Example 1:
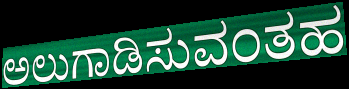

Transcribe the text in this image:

ಅಲುಗಾಡಿಸುವಂತಹ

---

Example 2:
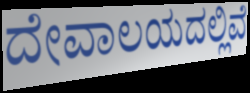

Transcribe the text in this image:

ದೇವಾಲಯದಲ್ಲಿವೆ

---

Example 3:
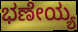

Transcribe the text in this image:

ಭಣೇಯ್ಯ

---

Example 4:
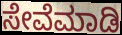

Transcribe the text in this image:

ಸೇವೆಮಾಡಿ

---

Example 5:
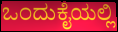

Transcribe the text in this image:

ಒಂದುಕೈಯಲ್ಲಿ